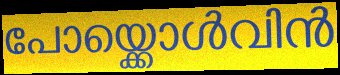
പോയ്ക്കൊൾവിൻ